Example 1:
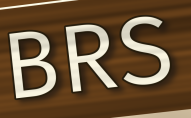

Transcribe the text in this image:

BRS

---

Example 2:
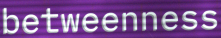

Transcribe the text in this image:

betweenness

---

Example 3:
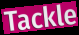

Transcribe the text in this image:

Tackle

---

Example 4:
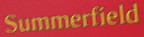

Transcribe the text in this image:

Summerfield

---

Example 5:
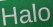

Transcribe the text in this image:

Halo